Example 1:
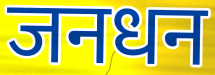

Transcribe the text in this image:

जनधन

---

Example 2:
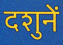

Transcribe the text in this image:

दशुनें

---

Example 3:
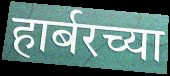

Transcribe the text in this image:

हार्बरच्या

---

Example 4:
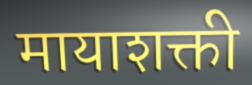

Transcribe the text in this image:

मायाशक्ती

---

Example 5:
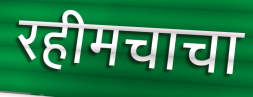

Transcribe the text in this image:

रहीमचाचा